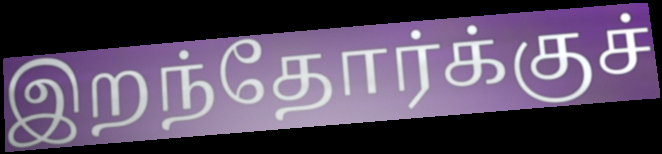
இறந்தோர்க்குச்